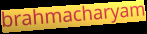
brahmacharyam